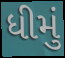
ધીમું